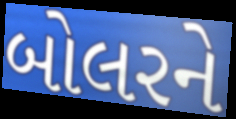
બોલરને